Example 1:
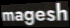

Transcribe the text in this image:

magesh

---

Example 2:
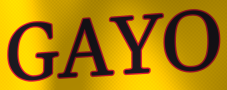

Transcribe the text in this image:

GAYO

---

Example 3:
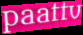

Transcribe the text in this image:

paattu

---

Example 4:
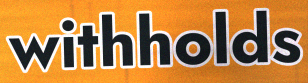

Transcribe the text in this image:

withholds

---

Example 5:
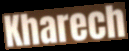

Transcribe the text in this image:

Kharech